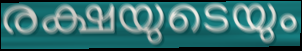
രക്ഷയുടെയും